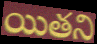
యితని